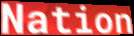
Nation